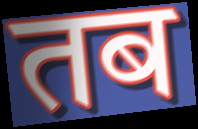
तब